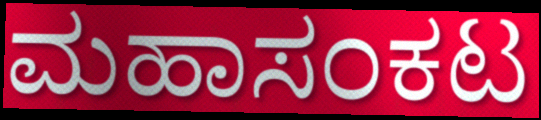
ಮಹಾಸಂಕಟ